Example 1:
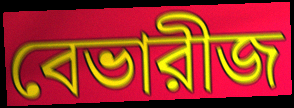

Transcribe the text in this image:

বেভারীজ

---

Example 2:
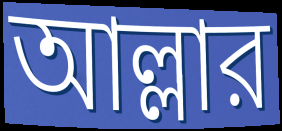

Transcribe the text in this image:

আল্লার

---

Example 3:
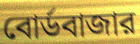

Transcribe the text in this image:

বোর্ডবাজার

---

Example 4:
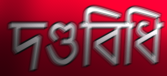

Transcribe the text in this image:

দণ্ডবিধি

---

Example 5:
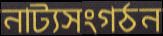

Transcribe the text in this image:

নাট্যসংগঠন